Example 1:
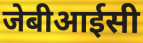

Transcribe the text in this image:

जेबीआईसी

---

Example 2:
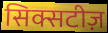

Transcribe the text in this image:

सिक्सटीज़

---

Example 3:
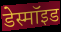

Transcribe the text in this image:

डेस्मॉइड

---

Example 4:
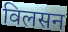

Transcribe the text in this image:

विलसन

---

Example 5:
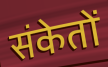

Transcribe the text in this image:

संकेतों